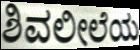
ಶಿವಲೀಲೆಯ